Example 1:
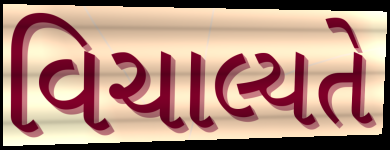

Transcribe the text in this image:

વિચાલ્યતે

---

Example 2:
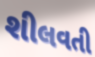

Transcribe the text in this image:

શીલવતી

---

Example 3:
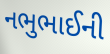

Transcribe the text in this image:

નભુભાઈની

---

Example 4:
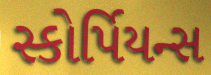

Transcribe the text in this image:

સ્કોર્પિયન્સ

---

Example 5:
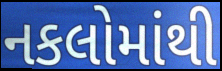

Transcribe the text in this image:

નકલોમાંથી